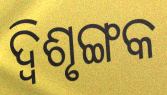
ଦ୍ଵିଶୃଙ୍ଗକ